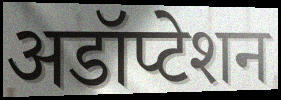
अडॉप्टेशन